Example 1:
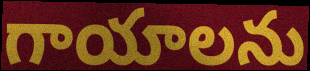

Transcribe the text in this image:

గాయాలను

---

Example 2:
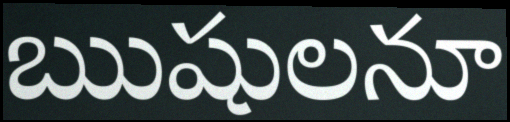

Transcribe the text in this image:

ఋషులనూ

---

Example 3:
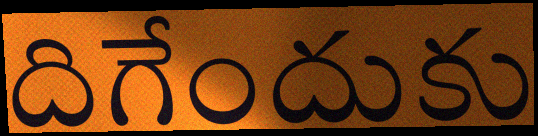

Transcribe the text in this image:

దిగేందుకు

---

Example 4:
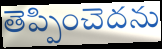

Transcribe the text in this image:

తెప్పించెదను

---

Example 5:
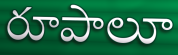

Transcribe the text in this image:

రూపాలూ